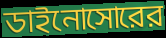
ডাইনোসোরের